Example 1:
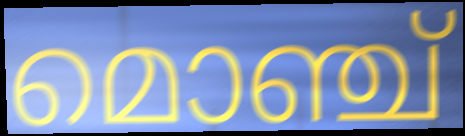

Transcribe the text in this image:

മൊഞ്ച്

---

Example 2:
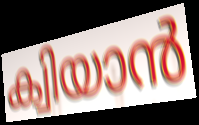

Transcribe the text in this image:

ക്വിയാൻ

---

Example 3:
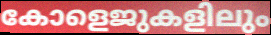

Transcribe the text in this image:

കോളെജുകളിലും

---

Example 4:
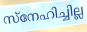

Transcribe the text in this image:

സ്നേഹിച്ചില്ല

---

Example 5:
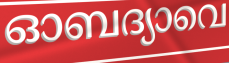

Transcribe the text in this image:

ഓബദ്യാവെ